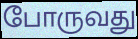
போருவது